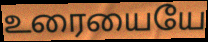
உரையையே